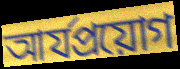
আর্যপ্রয়োগ